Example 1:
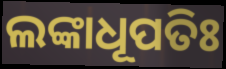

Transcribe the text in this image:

ଲଙ୍କାଧୂପତିଃ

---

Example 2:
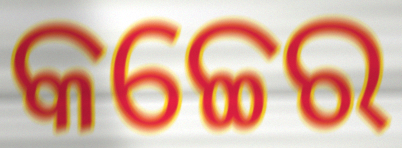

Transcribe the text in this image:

କଚ୍ଚେର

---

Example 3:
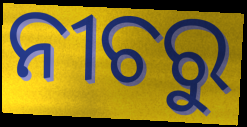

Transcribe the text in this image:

ନୀଚରୁ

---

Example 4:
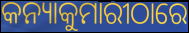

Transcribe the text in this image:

କନ୍ୟାକୁମାରୀଠାରେ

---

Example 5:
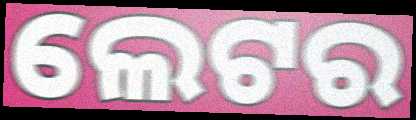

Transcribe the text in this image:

ଲେଟର